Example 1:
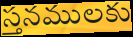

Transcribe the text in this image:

స్తనములకు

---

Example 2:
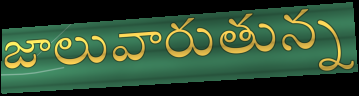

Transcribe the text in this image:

జాలువారుతున్న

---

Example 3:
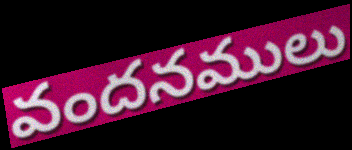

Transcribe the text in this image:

వందనములు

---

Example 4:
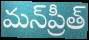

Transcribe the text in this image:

మన్‌ప్రీత్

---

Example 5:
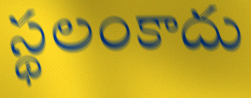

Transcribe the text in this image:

స్థలంకాదు